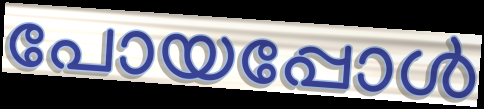
പോയപ്പോൾ